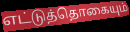
எட்டுத்தொகையும்